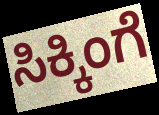
ಸಿಕ್ಕಿಂಗೆ